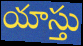
యాస్తు